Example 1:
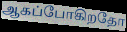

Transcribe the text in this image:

ஆகப்போகிறதோ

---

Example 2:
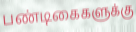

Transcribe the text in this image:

பண்டிகைகளுக்கு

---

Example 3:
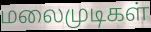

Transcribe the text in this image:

மலைமுடிகள்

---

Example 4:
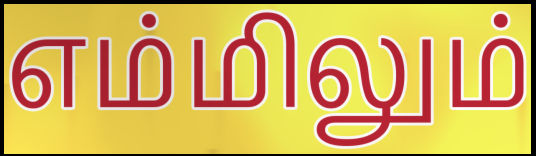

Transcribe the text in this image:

எம்மிலும்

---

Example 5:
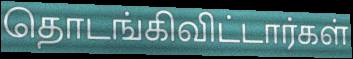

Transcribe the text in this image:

தொடங்கிவிட்டார்கள்